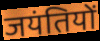
जयंतियों